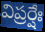
విప్రర్షేః